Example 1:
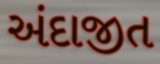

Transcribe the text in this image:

અંદાજીત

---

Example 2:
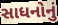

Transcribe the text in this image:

સાધનોનું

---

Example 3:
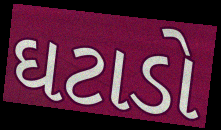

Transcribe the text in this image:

ઘટાડો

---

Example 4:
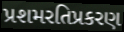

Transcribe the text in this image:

પ્રશમરતિપ્રકરણ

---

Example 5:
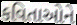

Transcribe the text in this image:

કવિતાઓને